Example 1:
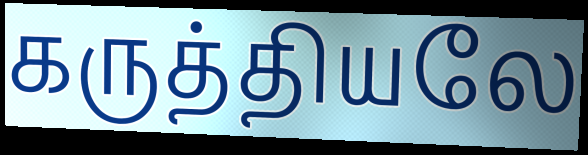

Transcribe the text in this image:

கருத்தியலே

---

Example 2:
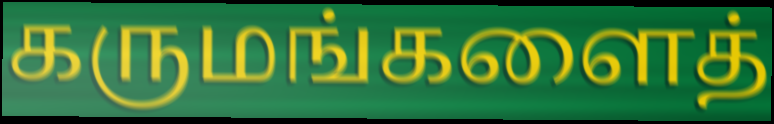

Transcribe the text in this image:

கருமங்களைத்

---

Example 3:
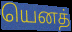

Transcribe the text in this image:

யெனத்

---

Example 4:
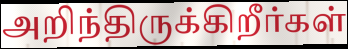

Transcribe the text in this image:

அறிந்திருக்கிறீர்கள்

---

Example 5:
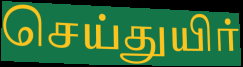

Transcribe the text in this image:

செய்துயிர்